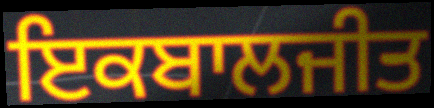
ਇਕਬਾਲਜੀਤ